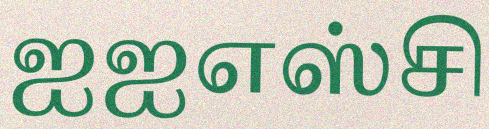
ஐஐஎஸ்சி